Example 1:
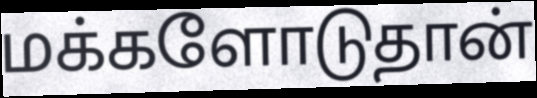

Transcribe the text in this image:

மக்களோடுதான்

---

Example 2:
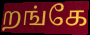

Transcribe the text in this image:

றங்கே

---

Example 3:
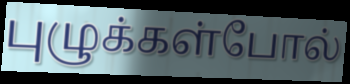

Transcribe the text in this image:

புழுக்கள்போல்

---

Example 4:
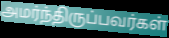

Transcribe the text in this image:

அமர்ந்திருப்பவர்கள்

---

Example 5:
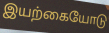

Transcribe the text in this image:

இயற்கையோடு